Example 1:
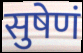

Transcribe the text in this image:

सुषेणं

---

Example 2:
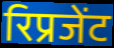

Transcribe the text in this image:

रिप्रजेंट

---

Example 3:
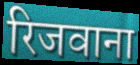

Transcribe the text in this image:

रिजवाना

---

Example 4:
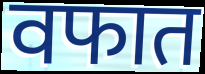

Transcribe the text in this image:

वफात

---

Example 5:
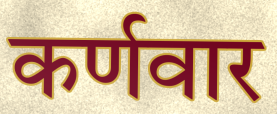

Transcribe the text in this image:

कर्णवार